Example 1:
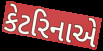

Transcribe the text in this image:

કેટરિનાએ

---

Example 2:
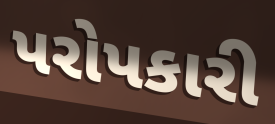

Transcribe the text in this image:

પરોપકારી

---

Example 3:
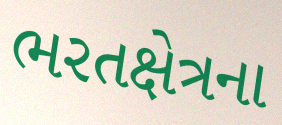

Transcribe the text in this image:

ભરતક્ષેત્રના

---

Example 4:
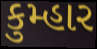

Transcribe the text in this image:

કુમ્હાર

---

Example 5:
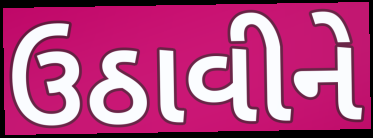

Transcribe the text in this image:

ઉઠાવીને